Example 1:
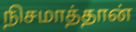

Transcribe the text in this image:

நிசமாத்தான்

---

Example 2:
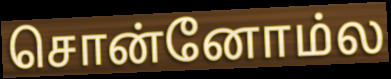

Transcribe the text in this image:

சொன்னோம்ல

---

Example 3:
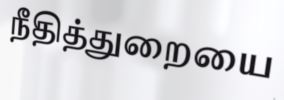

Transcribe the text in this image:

நீதித்துறையை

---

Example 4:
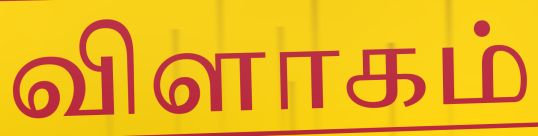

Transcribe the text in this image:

விளாகம்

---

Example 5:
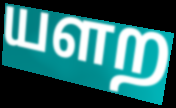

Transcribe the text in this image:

யளற